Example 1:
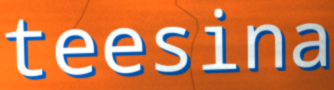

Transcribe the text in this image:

teesina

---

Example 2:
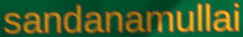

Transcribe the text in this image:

sandanamullai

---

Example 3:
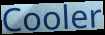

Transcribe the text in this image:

Cooler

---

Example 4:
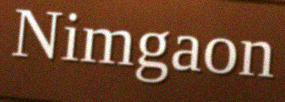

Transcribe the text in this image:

Nimgaon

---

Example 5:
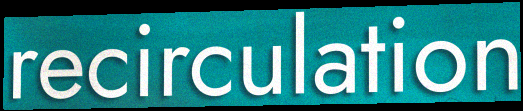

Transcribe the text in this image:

recirculation